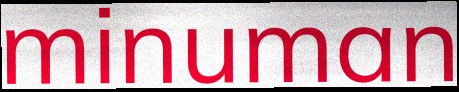
minuman